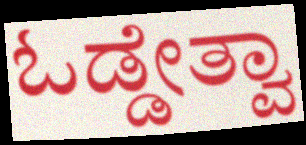
ಓಡ್ಡೇತ್ವಾ